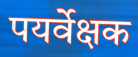
पयर्वेक्षक